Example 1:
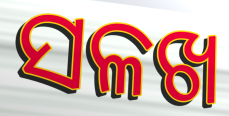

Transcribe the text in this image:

ସଳଖ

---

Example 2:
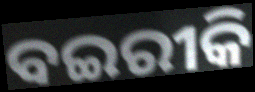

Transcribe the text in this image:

ବଇରୀକି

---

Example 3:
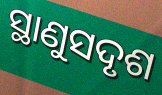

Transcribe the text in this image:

ସ୍ଥାଣୁସଦୃଶ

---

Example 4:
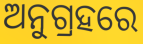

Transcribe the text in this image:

ଅନୁଗ୍ରହରେ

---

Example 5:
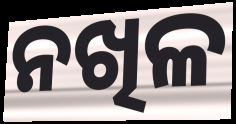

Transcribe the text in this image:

ନଖିଳ